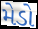
મેડો